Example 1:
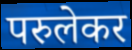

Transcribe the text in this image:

परुलेकर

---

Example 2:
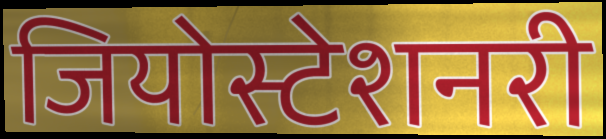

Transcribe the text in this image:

जियोस्टेशनरी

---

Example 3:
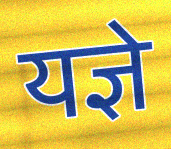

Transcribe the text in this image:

यज्ञे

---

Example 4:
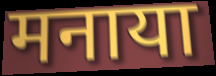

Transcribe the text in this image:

मनाया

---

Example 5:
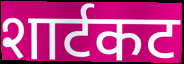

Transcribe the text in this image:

शार्टकट